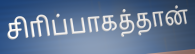
சிரிப்பாகத்தான்